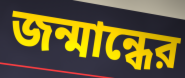
জন্মান্ধের